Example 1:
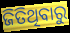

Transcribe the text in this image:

ଜିତିଥିବାରୁ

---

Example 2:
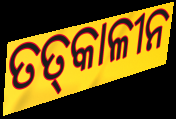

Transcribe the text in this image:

ତତ୍‌କାଳୀନ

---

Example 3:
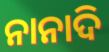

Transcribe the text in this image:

ନାନାଦି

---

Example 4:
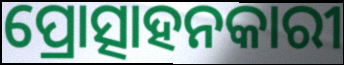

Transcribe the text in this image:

ପ୍ରୋତ୍ସାହନକାରୀ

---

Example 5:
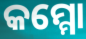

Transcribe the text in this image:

କମ୍ମୋ